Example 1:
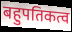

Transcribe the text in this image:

बहुपतिकत्व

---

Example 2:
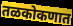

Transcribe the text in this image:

तळकोकणात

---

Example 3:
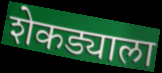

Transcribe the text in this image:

शेकड्याला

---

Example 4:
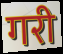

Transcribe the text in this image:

गरी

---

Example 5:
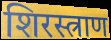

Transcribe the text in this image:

शिरस्त्राण